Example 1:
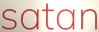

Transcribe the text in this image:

satan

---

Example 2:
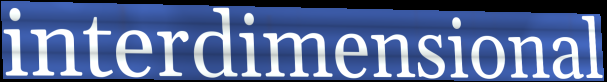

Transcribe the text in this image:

interdimensional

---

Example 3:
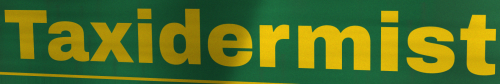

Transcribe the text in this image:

Taxidermist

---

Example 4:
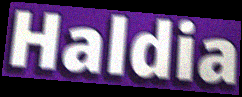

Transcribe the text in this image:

Haldia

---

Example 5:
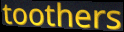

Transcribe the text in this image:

toothers